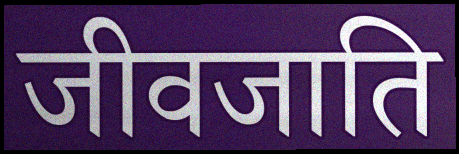
जीवजाति